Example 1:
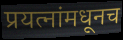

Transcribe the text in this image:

प्रयत्नांमधूनच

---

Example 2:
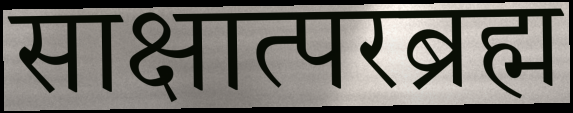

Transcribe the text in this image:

साक्षात्परब्रह्म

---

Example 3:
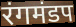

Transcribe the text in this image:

रंगमंडप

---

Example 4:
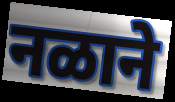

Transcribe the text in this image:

नळाने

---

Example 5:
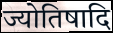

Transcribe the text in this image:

ज्योतिषादि